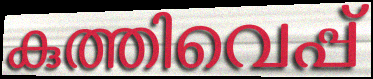
കുത്തിവെപ്പ്